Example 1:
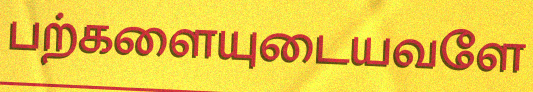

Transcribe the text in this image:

பற்களையுடையவளே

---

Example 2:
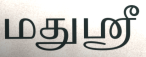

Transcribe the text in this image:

மதுஸ்ரீ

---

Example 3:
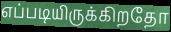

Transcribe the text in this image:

எப்படியிருக்கிறதோ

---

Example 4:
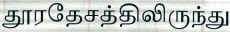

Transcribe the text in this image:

தூரதேசத்திலிருந்து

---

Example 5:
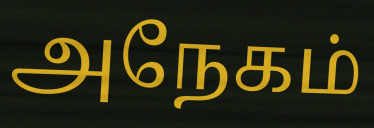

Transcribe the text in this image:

அநேகம்